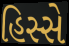
હિસ્સે